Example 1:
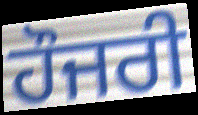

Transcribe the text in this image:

ਹੌਜਰੀ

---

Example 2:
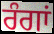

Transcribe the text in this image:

ਰੰਗਾਂ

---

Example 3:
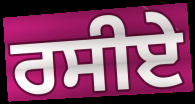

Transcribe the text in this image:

ਰਸੀਏ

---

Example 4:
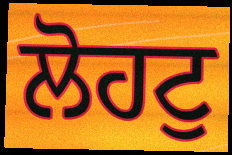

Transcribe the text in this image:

ਲੋਹਟੁ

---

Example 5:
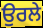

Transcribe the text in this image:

ਉਰਲੇ